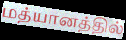
மத்யானத்தில்